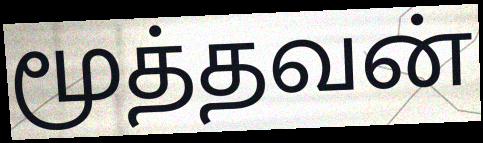
மூத்தவன்